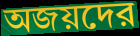
অজয়দের